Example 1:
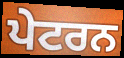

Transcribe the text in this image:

ਪੇਟਰਨ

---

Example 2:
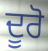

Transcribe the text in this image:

ਦੂਰੋ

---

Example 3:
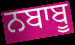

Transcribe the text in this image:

ਨਬਾਬੂ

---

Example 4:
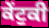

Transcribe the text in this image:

ਕੇਂਟੁਕੀ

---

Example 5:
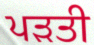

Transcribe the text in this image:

ਪੜਤੀ